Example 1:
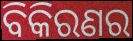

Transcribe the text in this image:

ବିକିରଣର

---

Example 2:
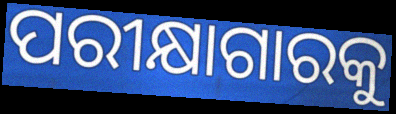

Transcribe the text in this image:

ପରୀକ୍ଷାଗାରକୁ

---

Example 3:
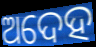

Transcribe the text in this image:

ଅଦେହ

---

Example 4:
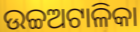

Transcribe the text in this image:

ଉଚ୍ଚଅଟାଳିକା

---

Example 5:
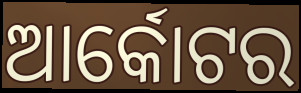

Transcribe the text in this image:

ଆର୍କୋଟର